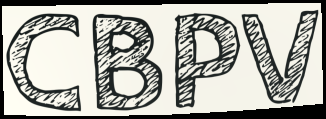
CBPV